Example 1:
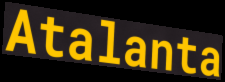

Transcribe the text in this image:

Atalanta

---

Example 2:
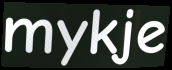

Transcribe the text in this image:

mykje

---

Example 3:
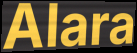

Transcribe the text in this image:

Alara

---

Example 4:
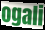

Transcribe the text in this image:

ogali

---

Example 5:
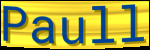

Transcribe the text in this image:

Paull